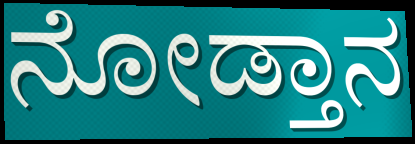
ನೋಡ್ತಾನ